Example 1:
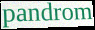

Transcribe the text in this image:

pandrom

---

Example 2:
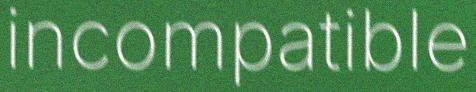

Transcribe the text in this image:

incompatible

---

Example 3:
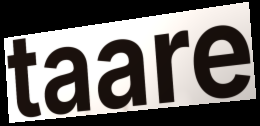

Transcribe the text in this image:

taare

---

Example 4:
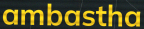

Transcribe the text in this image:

ambastha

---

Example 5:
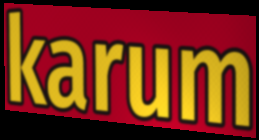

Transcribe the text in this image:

karum